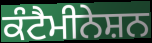
ਕੰਟੈਮੀਨੇਸ਼ਨ